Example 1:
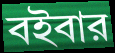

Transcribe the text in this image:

বইবার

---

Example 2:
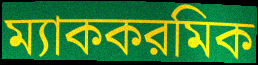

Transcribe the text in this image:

ম্যাককরমিক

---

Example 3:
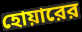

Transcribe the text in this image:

হোয়ারের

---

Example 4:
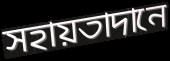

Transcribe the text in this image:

সহায়তাদানে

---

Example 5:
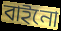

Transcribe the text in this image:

বাইনো